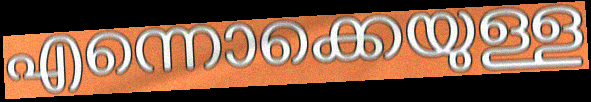
എന്നൊക്കെയുള്ള